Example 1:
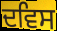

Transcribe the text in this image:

ਦਵਿਸ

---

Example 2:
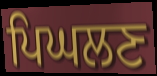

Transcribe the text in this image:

ਪਿਘਲਣ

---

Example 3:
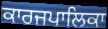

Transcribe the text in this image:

ਕਾਰਜਪਾਲਿਕਾ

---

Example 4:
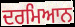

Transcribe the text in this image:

ਦਰਮਿਆਨ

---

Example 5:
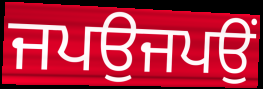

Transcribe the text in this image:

ਜਪਉਜਪਉਂ